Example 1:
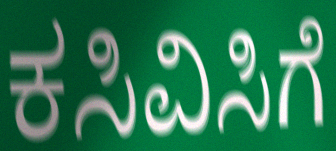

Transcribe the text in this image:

ಕಸಿವಿಸಿಗೆ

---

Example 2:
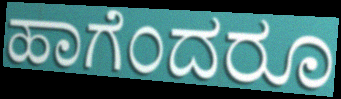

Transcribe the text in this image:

ಹಾಗೆಂದರೂ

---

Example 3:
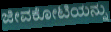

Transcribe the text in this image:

ಜೀವಕೋಟಿಯನ್ನು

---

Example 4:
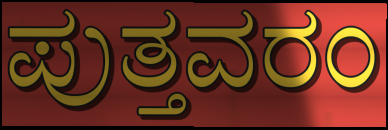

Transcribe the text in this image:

ಪುತ್ತವರಂ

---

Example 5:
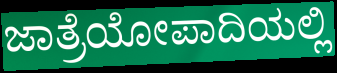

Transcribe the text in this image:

ಜಾತ್ರೆಯೋಪಾದಿಯಲ್ಲಿ